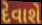
દેવાશે